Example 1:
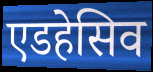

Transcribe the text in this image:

एडहेसिव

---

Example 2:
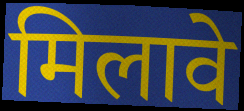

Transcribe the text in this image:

मिलावे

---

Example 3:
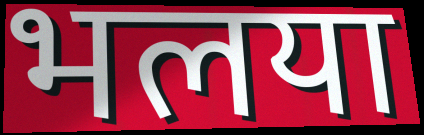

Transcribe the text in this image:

भलया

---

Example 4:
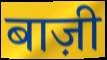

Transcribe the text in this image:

बाज़ी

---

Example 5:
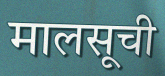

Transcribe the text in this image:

मालसूची